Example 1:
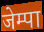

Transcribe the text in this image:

जेम्पा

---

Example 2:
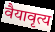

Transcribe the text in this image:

वैयावृत्य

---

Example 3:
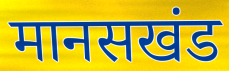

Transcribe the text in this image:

मानसखंड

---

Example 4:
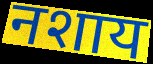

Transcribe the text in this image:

नशाय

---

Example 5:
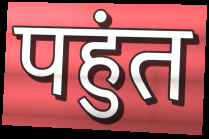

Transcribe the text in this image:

पहुंत